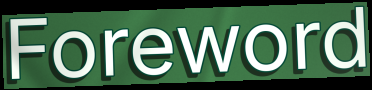
Foreword